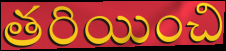
తరియించి